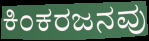
ಕಿಂಕರಜನವು